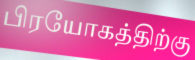
பிரயோகத்திற்கு